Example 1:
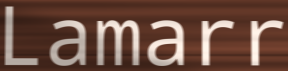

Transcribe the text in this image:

Lamarr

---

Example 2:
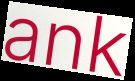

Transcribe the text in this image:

ank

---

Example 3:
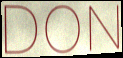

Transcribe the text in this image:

DON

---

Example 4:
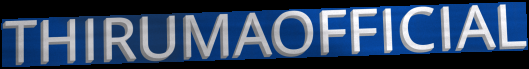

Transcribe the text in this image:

THIRUMAOFFICIAL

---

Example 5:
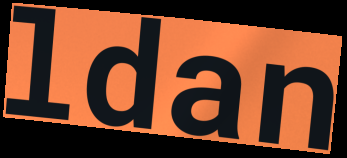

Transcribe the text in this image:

ldan